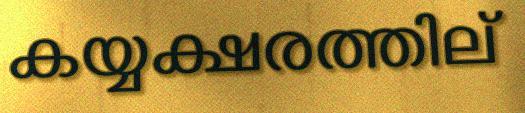
കയ്യക്ഷരത്തില്